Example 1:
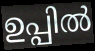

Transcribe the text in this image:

ഉപ്പിൽ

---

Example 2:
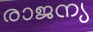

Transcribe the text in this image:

രാജന്യ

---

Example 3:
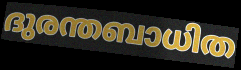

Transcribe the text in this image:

ദുരന്തബാധിത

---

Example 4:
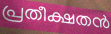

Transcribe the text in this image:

പ്രതീക്ഷതൻ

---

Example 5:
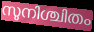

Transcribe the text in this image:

സുനിശ്ചിതം